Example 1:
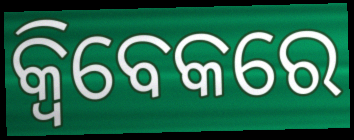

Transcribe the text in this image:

କ୍ୱିବେକରେ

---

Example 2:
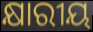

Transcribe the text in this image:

କ୍ଷାରୀୟ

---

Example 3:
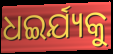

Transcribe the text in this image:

ଧଇର୍ଯ୍ୟକୁ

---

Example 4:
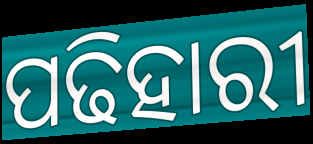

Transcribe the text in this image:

ପଢିହାରୀ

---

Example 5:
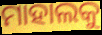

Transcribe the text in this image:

ମାହାଲକୁ